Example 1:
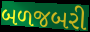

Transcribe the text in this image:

બળજબરી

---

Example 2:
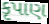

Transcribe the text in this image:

કૃપાણ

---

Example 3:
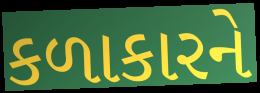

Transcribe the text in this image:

કળાકારને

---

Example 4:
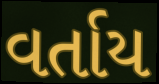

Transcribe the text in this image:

વર્તાય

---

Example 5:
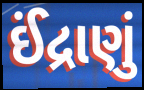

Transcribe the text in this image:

ઈંદ્રાણું